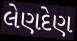
લેણદેણ